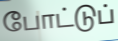
போட்டுப்